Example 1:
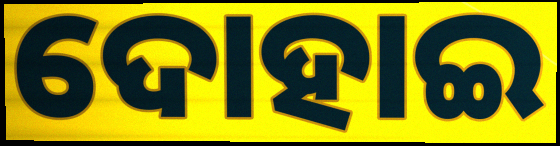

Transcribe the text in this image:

ଦୋହାଇ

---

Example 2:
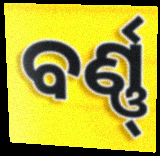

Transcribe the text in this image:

ବର୍ଣ୍ଣ୍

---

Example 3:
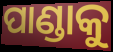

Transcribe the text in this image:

ପାଣ୍ଡାକୁ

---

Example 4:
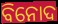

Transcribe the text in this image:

ବିନୋଦ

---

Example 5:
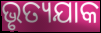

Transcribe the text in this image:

ଭୃତ୍ୟଯାକ